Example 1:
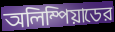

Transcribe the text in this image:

অলিম্পিয়াডের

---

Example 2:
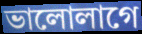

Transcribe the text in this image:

ভালোলাগে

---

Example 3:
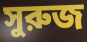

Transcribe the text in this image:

সুরুজ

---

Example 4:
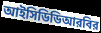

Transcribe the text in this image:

আইসিডিডিআরবির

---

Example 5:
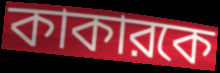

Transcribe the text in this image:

কাকারকে